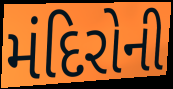
મંદિરોની